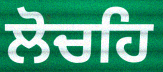
ਲੋਚਹਿ